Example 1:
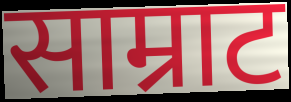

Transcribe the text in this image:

साम्राट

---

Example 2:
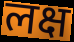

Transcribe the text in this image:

लक्ष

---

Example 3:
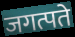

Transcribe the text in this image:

जगत्पते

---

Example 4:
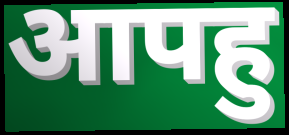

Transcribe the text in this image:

आपहु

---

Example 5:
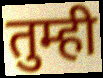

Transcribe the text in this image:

तुम्ही